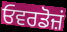
ਓਵਰਡੋਜ਼ਂ